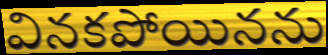
వినకపోయినను